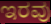
ಇರವು